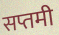
सप्तमी